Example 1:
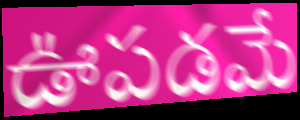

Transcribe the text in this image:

ఊపడమే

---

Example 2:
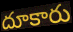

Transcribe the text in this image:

దూకారు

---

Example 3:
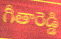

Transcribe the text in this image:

గీతారెడ్డి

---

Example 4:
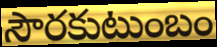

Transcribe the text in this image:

సౌరకుటుంబం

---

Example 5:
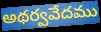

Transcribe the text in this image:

అథర్వవేదము